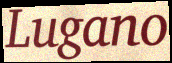
Lugano